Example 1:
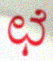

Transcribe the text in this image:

ಛೆ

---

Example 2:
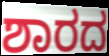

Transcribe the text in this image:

ಶಾರದ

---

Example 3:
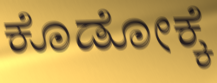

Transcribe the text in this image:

ಕೊಡೋಕ್ಕೆ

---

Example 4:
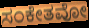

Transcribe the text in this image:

ಸಂಕೇತವೋ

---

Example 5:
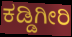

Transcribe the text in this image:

ಕಡ್ಡಿಗೀರಿ